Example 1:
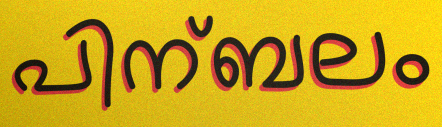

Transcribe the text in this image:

പിന്ബലം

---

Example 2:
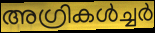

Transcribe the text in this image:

അഗ്രികൾച്ചർ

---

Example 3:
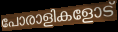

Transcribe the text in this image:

പോരാളികളോട്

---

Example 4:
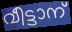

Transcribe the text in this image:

വീട്ടാന്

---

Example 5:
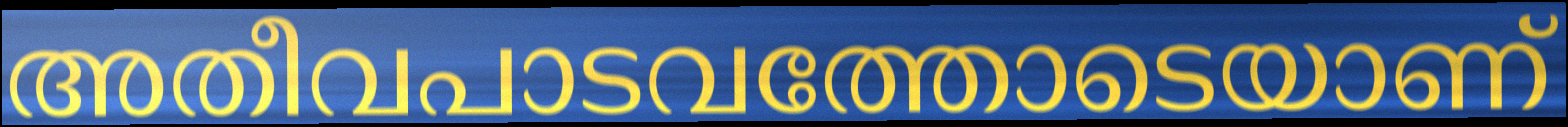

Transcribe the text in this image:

അതീവപാടവത്തോടെയാണ്